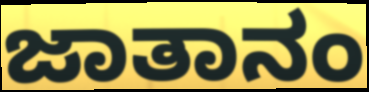
ಜಾತಾನಂ